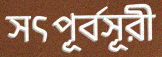
সৎপূর্বসূরী